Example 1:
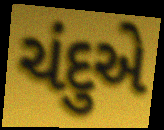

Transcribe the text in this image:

ચંદુએ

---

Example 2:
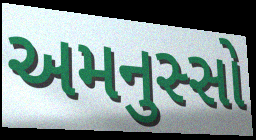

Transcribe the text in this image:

અમનુસ્સો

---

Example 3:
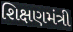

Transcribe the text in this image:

શિક્ષણમંત્રી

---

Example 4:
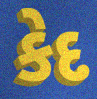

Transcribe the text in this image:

કેદ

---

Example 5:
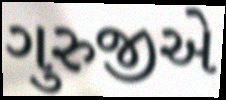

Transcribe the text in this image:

ગુરુજીએ